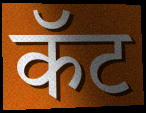
कॅट